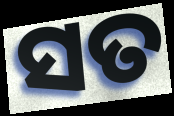
ସତ